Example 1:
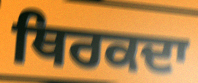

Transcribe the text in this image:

ਥਿਰਕਦਾ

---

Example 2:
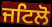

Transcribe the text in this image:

ਜਟਿਲੋ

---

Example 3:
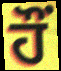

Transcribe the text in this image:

ਹੌਂ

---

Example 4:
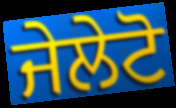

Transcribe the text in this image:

ਜੇਲੇਟੋ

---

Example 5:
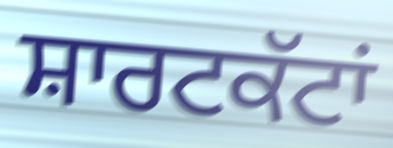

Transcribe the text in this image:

ਸ਼ਾਰਟਕੱਟਾਂ